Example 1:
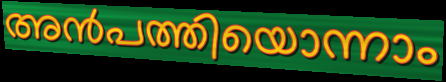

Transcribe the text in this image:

അൻപത്തിയൊന്നാം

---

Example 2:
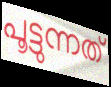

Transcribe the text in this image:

പൂട്ടുന്നത്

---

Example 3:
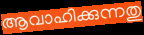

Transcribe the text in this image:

ആവാഹിക്കുന്നതു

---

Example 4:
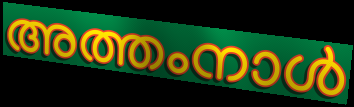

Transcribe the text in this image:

അത്തംനാൾ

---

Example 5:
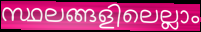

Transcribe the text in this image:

സ്ഥലങ്ങളിലെല്ലാം